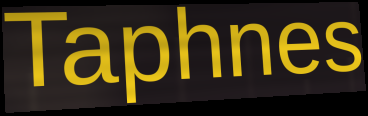
Taphnes